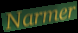
Narmer